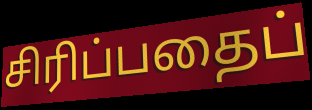
சிரிப்பதைப்